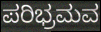
ಪರಿಭ್ರಮವ